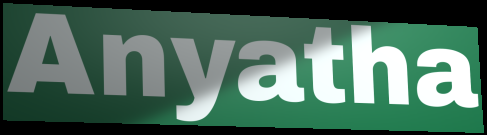
Anyatha